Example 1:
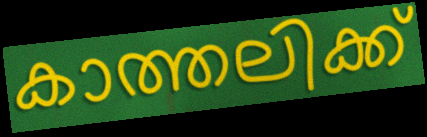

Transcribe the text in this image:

കാത്തലിക്ക്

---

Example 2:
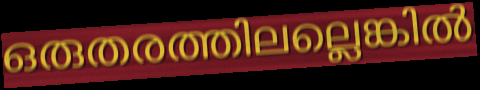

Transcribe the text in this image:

ഒരുതരത്തിലല്ലെങ്കിൽ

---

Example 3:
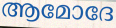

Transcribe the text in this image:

ആമോദേ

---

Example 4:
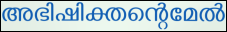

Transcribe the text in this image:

അഭിഷിക്തന്റെമേൽ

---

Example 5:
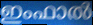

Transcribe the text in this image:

ഇംഫാൽ